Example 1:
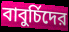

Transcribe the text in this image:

বাবুর্চিদের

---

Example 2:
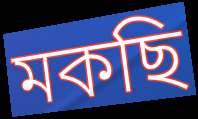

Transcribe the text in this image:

মকছি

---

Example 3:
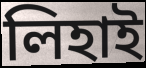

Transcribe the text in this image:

লিহাই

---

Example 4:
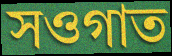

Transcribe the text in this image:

সওগাত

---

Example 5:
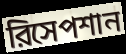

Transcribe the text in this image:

রিসেপশান